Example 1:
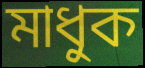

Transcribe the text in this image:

মাধুক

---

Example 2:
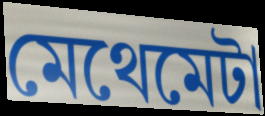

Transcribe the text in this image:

মেথেমেটা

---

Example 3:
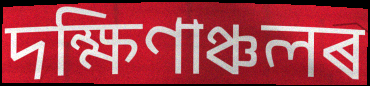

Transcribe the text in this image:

দক্ষিণাঞ্চলৰ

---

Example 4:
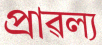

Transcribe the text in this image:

প্ৰাৱল্য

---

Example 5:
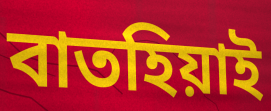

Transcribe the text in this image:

বাতহিয়াই